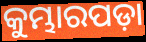
କୁମ୍ଭାରପଡ଼ା